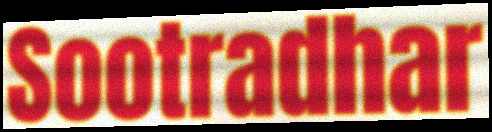
Sootradhar